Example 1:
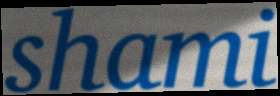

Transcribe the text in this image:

shami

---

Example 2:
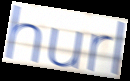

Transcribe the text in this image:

hurl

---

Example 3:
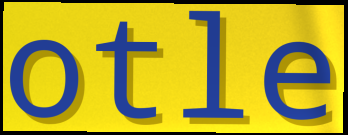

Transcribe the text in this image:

otle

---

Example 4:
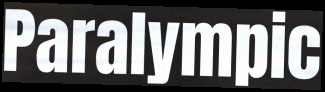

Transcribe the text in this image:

Paralympic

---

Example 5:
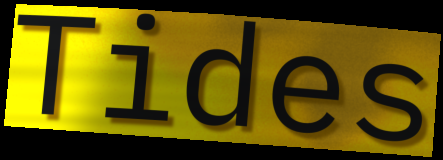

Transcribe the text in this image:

Tides